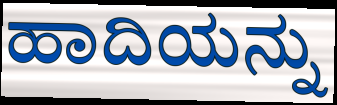
ಹಾದಿಯನ್ನು